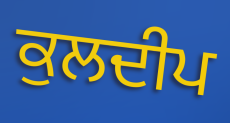
ਕੁਲਦੀਪ